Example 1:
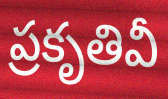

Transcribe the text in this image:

ప్రకృతివీ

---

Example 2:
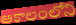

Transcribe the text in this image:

ఆకాలంలోని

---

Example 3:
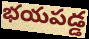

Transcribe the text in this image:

భయపడ్డ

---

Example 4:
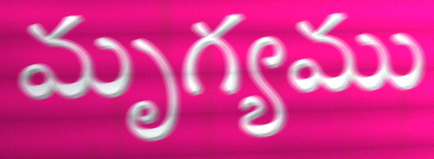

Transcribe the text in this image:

మృగ్యము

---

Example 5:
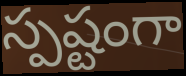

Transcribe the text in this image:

స్పష్టంగా